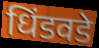
धिंडवडे